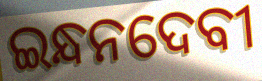
ଇନ୍ଧନଦେବୀ